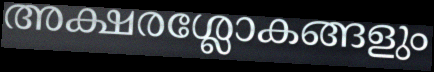
അക്ഷരശ്ലോകങ്ങളും